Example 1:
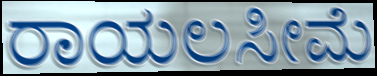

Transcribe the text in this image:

ರಾಯಲಸೀಮೆ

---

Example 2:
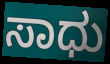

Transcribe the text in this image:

ಸಾಧು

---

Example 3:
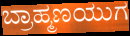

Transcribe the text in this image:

ಬ್ರಾಹ್ಮಣಯುಗ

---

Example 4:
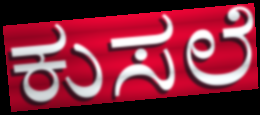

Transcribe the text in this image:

ಕುಸಲೆ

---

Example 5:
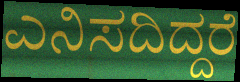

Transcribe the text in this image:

ಎನಿಸದಿದ್ದರೆ